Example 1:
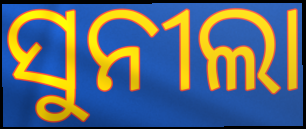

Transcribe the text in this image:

ସୁନୀଲା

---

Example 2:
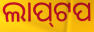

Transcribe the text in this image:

ଲାପ୍‌ଟପ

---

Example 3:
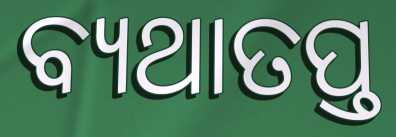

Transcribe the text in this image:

ବ୍ୟଥାତପ୍ତ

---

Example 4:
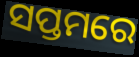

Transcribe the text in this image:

ସପ୍ତମରେ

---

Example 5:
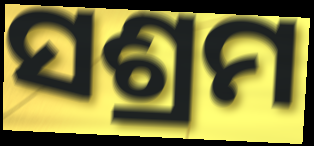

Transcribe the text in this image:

ସଶ୍ରମ